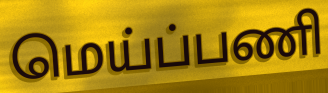
மெய்ப்பணி